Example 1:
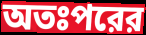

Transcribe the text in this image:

অতঃপরের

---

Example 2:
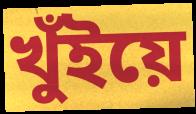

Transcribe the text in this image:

খুঁইয়ে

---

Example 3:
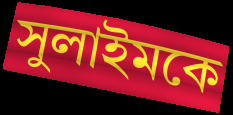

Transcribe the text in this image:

সুলাইমকে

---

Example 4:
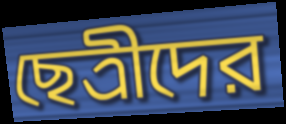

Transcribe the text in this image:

ছেত্রীদের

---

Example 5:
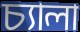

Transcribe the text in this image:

চ্যালা